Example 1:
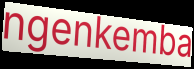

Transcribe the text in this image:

ngenkemba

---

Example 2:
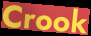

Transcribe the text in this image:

Crook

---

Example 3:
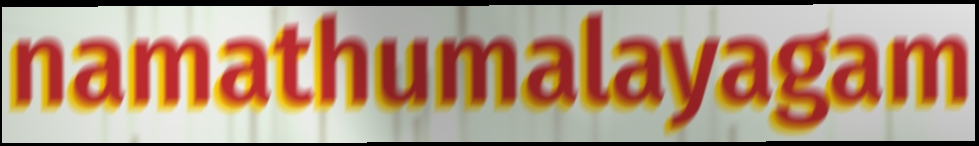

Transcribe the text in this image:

namathumalayagam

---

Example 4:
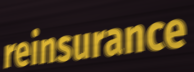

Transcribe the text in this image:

reinsurance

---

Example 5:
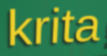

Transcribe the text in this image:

krita